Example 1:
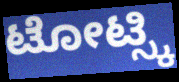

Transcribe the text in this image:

ಟೋಟ್ಸ್ಕಿ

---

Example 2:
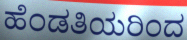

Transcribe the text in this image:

ಹೆಂಡತಿಯರಿಂದ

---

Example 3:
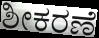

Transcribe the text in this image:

ಶೀಕರಣೆ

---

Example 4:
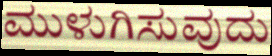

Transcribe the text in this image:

ಮುಳುಗಿಸುವುದು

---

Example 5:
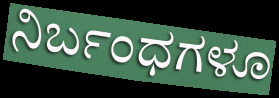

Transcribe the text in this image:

ನಿರ್ಬಂಧಗಳೂ